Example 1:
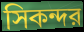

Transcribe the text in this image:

সিকন্দর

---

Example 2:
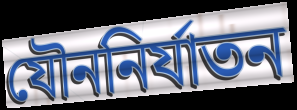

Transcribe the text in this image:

যৌননির্যাতন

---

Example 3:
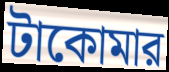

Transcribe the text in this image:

টাকোমার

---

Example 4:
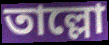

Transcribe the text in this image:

তাল্লো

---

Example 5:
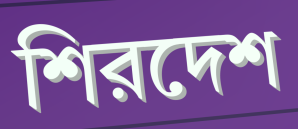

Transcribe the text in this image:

শিরদেশ